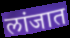
लांजात